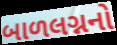
બાળલગ્નનો